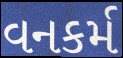
વનકર્મ